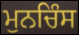
ਮੁਨਚਿੰਸ